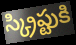
స్క్రిప్టుకి